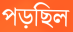
পড়ছিল